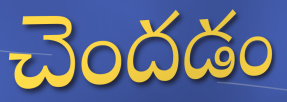
చెందడం